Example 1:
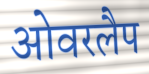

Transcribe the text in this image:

ओवरलैप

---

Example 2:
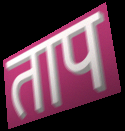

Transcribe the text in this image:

ताप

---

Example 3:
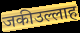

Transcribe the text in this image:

जकीउल्लाह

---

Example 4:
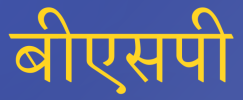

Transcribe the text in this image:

बीएसपी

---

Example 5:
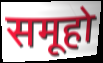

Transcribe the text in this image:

समूहो